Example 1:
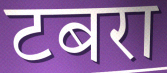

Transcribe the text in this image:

टबरा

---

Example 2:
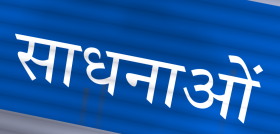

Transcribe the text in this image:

साधनाओं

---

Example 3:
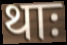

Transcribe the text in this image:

थाः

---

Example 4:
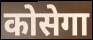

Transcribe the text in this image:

कोसेगा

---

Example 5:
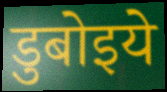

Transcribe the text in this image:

डुबोइये